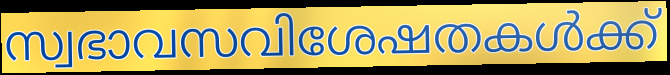
സ്വഭാവസവിശേഷതകൾക്ക്